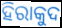
ହିରାକୁଦ